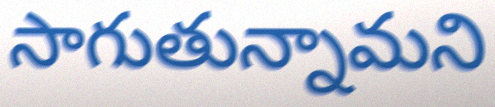
సాగుతున్నామని